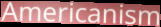
Americanism